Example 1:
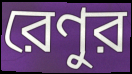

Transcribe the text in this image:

রেণুর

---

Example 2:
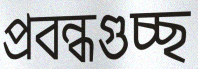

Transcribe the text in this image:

প্রবন্ধগুচ্ছ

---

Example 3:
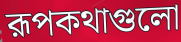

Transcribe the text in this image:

রূপকথাগুলো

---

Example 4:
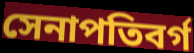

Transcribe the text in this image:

সেনাপতিবর্গ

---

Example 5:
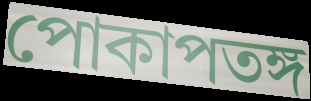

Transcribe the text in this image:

পোকাপতঙ্গ